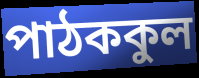
পাঠককুল